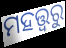
ମହତ୍ତ୍ୱରୁ